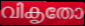
വികൃതോ